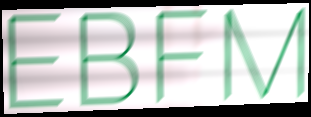
EBFM